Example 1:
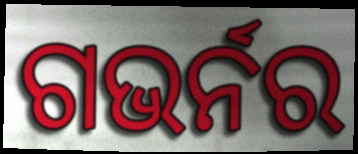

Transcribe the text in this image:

ଗଭର୍ନର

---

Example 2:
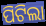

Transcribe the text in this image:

ପିଟିଲା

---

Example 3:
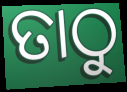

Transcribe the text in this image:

ତାଠୁ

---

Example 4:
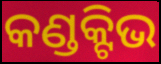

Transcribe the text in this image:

କଣ୍ଡକ୍ଟିଭ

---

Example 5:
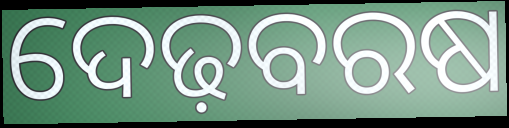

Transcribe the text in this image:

ଦେଢ଼ବରଷ